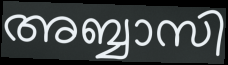
അബ്ബാസി